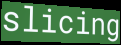
slicing